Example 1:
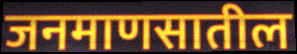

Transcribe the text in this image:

जनमाणसातील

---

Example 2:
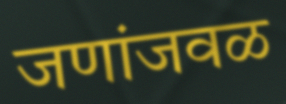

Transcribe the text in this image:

जणांजवळ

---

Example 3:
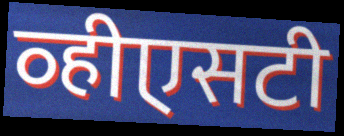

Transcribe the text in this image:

व्हीएसटी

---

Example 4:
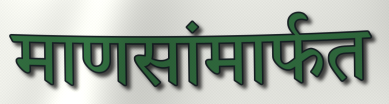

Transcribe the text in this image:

माणसांमार्फत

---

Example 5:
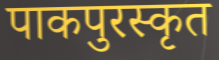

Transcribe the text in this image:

पाकपुरस्कृत